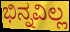
ಭಿನ್ನವಿಲ್ಲ